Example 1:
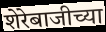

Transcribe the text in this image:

शेरेबाजीच्या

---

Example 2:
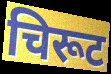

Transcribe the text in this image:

चिरूट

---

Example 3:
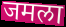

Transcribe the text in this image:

जमला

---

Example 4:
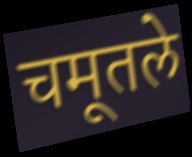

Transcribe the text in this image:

चमूतले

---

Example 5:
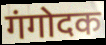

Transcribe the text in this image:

गंगोदक